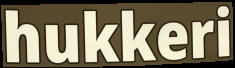
hukkeri